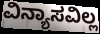
ವಿನ್ಯಾಸವಿಲ್ಲ